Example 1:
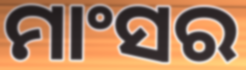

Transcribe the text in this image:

ମାଂସର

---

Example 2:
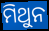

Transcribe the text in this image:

ମିଥୁନ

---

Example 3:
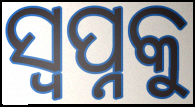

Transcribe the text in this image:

ସ୍ବପ୍ନକୁ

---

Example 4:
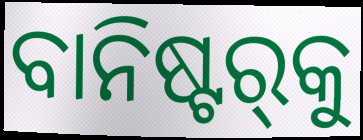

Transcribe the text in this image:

ବାନିଷ୍ଟର୍‍କୁ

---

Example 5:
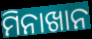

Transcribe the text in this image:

ମିନାଖାନ